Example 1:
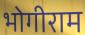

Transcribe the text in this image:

भोगीराम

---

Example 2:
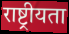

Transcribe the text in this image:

राष्ट्रीयता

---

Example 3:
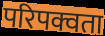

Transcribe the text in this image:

परिपक्‍वता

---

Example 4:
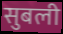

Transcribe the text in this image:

सुबली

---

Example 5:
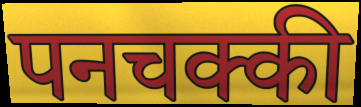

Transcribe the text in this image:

पनचक्की